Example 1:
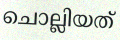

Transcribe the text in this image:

ചൊല്ലിയത്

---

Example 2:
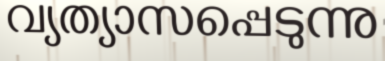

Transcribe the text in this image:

വ്യത്യാസപ്പെടുന്നു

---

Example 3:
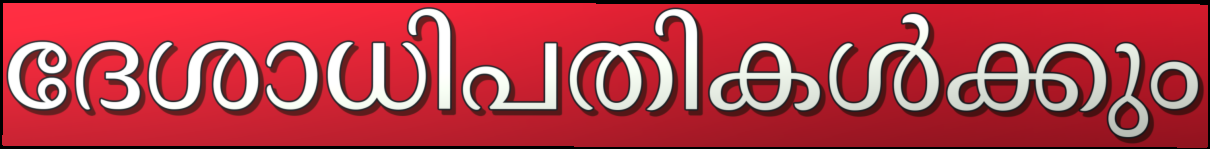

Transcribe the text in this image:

ദേശാധിപതികൾക്കും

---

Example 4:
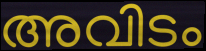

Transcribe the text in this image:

അവിടം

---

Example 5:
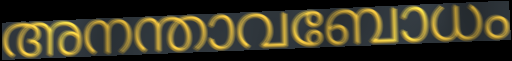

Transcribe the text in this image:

അനന്താവബോധം